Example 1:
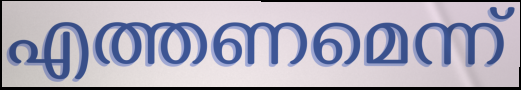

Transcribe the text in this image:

എത്തണമെന്ന്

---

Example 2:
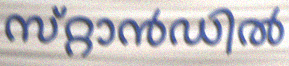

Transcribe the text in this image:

സ്‌റ്റാൻഡിൽ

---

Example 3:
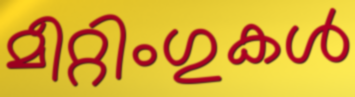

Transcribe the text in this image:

മീറ്റിംഗുകൾ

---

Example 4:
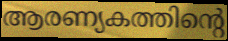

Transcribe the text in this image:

ആരണ്യകത്തിന്റെ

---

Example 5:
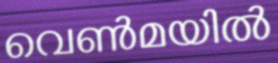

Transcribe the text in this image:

വെൺമയിൽ